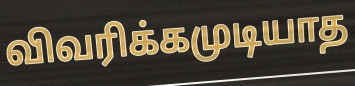
விவரிக்கமுடியாத